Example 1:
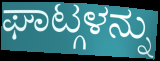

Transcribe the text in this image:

ಘಾಟ್ಗಳನ್ನು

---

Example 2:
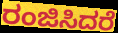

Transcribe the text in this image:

ರಂಜಿಸಿದರೆ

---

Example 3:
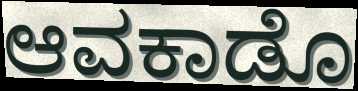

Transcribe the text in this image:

ಆವಕಾಡೊ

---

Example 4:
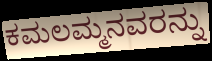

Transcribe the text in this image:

ಕಮಲಮ್ಮನವರನ್ನು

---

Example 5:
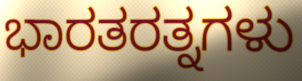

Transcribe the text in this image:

ಭಾರತರತ್ನಗಳು